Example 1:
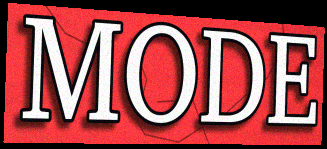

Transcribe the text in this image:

MODE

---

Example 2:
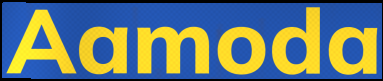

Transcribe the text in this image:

Aamoda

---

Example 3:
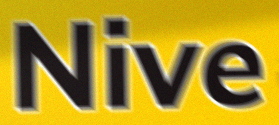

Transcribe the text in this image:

Nive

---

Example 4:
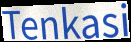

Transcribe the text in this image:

Tenkasi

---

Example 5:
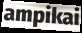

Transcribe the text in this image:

ampikai